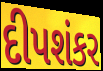
દીપશંકર